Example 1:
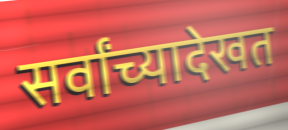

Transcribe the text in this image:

सर्वांच्यादेखत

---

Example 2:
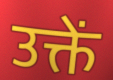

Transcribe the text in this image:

उक्तें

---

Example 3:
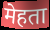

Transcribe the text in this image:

मेहता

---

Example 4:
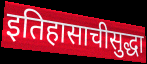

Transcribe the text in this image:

इतिहासाचीसुद्धा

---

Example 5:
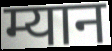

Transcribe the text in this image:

म्यान